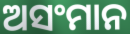
ଅସଂମାନ